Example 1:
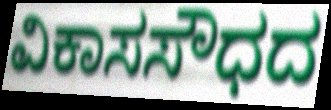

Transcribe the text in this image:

ವಿಕಾಸಸೌಧದ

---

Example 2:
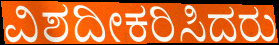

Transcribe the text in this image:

ವಿಶದೀಕರಿಸಿದರು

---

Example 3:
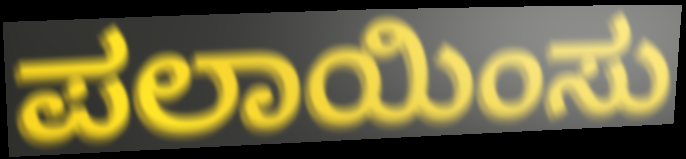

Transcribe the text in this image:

ಪಲಾಯಿಂಸು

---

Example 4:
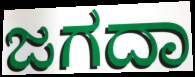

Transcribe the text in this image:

ಜಗದಾ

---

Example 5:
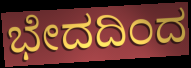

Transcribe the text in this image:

ಭೇದದಿಂದ